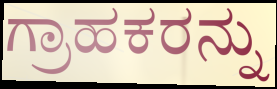
ಗ್ರಾಹಕರನ್ನು